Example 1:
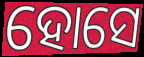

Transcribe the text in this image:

ହୋସେ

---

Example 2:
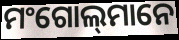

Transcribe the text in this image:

ମଂଗୋଲ୍‍ମାନେ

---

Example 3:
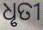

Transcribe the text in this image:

ଧୃତୀ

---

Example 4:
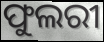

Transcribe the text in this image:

ଫୁଲରୀ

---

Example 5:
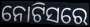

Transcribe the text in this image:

ନୋଟିସରେ